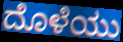
ದೊಳೆಯು